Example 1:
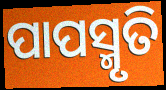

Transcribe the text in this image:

ପାପସ୍ମୃତି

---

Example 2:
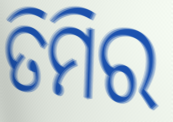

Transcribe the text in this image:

ତିମିର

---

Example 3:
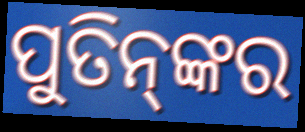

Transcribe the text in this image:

ପୁତିନ୍‌ଙ୍କର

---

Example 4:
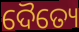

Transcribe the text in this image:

ଦୈତ୍ୟେ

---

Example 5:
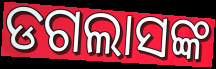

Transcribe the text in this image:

ଡଗଲାସଙ୍କ